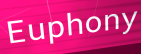
Euphony